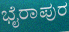
ಭೈರಾಪುರ